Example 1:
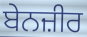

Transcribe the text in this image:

ਬੇਨਜ਼ੀਰ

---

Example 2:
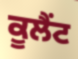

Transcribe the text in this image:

ਕੂਲੈਂਟ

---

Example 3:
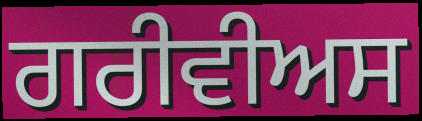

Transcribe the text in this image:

ਗਰੀਵੀਅਸ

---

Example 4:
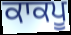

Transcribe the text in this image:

ਕਾਕਪੂ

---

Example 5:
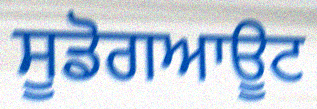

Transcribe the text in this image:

ਸੂਡੋਗਆਊਟ